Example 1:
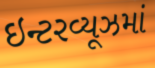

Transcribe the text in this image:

ઇન્ટરવ્યૂઝમાં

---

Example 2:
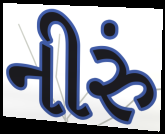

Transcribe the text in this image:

નીરું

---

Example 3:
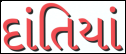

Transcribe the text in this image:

દાંતિયાં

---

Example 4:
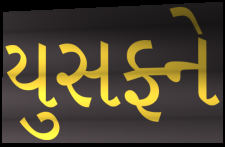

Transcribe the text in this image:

યુસફ્ને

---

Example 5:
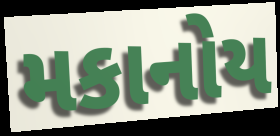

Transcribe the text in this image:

મકાનોય